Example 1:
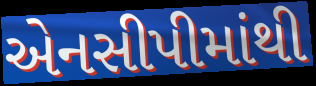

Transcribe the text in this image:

એનસીપીમાંથી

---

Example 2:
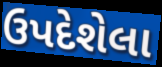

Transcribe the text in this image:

ઉપદેશેલા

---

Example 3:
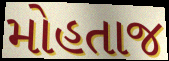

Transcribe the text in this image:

મોહતાજ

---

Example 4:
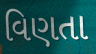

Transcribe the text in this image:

વિણતા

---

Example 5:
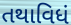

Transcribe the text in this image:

તથાવિધં